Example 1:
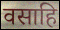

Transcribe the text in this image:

वसाहि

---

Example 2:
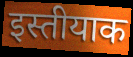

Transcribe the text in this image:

इस्तीयाक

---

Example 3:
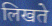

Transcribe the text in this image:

लिखते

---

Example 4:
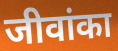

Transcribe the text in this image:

जीवांका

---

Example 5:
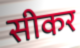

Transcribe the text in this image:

सीकर